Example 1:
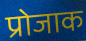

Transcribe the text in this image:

प्रोजाक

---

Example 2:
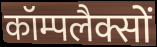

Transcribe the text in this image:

कॉम्पलैक्सों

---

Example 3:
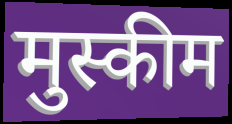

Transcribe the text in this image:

मुस्कीम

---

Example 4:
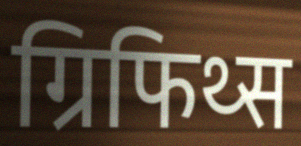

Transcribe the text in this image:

ग्रिफिथ्स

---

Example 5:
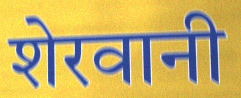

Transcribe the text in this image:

शेरवानी